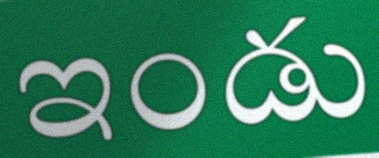
ఇండు